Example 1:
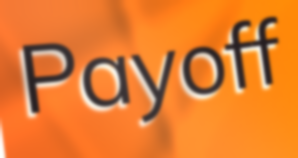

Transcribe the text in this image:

Payoff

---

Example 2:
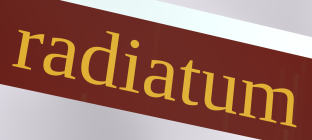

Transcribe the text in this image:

radiatum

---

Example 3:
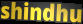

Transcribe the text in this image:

shindhu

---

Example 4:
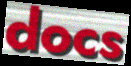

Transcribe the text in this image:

docs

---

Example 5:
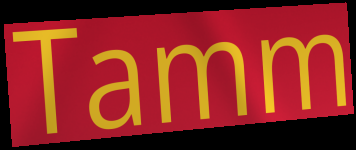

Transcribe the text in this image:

Tamm